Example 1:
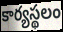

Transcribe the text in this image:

కార్యస్థలం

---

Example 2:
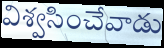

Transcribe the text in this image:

విశ్వసించేవాడు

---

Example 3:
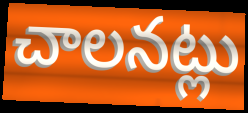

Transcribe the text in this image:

చాలనట్లు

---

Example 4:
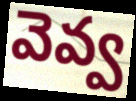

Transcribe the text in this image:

వెవ్వ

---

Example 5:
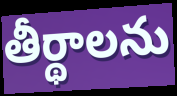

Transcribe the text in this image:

తీర్థాలను